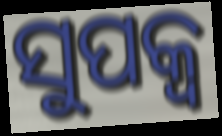
ସୁପକ୍ବ